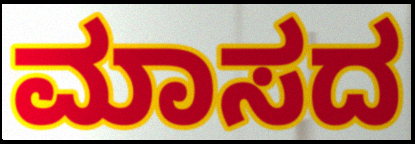
ಮಾಸದ